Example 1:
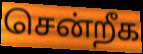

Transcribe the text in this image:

சென்றீக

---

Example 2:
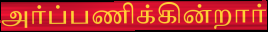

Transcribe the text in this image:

அர்ப்பணிக்கின்றார்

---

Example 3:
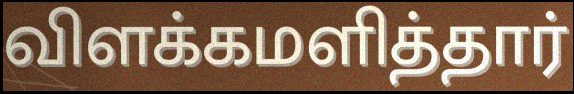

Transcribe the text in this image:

விளக்கமளித்தார்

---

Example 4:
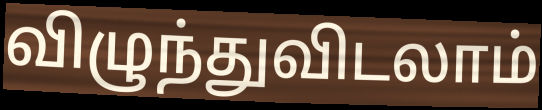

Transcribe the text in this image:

விழுந்துவிடலாம்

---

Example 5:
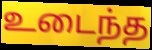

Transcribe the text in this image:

உடைந்த